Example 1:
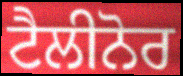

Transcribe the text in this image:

ਟੈਲੀਨੋਰ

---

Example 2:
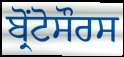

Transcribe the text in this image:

ਬ੍ਰੋਂਟੋਸੌਰਸ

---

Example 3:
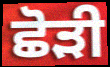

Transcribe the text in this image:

ਛੋੜੀ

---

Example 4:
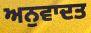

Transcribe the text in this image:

ਅਨੁਵਾਦਤ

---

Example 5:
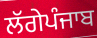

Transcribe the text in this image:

ਲੱਗੇਪੰਜਾਬ